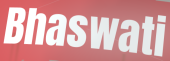
Bhaswati